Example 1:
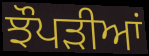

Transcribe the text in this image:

ਝੌਪੜੀਆਂ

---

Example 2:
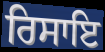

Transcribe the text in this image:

ਰਿਸਾਇ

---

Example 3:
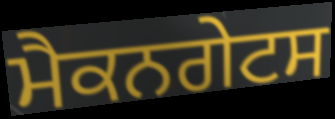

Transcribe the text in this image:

ਮੈਕਨਗੇਟਸ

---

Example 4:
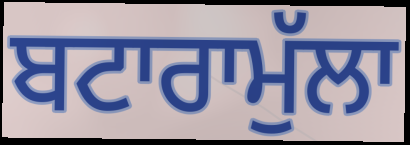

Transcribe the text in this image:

ਬਟਾਰਾਮੁੱਲਾ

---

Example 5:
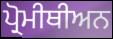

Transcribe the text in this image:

ਪ੍ਰੋਮੀਥੀਅਨ